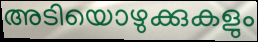
അടിയൊഴുക്കുകളും